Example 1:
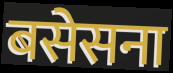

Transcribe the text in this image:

बसेसना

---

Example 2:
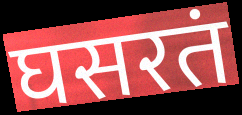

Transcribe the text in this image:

घसरतं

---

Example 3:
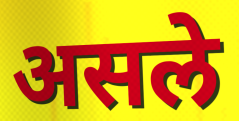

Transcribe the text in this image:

असले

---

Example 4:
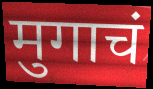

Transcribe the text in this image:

मुगाचं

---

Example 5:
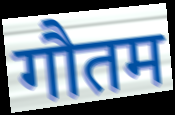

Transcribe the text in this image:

गौतम